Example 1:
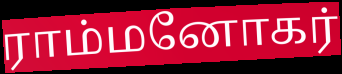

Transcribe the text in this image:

ராம்மனோகர்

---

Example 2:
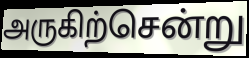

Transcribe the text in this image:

அருகிற்சென்று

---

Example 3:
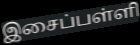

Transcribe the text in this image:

இசைப்பள்ளி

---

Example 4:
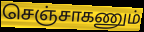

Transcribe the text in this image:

செஞ்சாகணும்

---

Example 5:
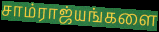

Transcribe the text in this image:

சாம்ராஜ்யங்களை